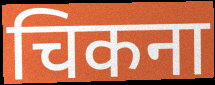
चिकना